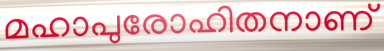
മഹാപുരോഹിതനാണ്